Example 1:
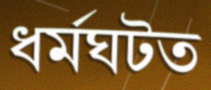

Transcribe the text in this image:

ধৰ্মঘটত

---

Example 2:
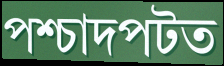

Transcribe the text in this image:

পশ্চাদপটত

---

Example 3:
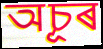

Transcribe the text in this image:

অচূৰ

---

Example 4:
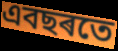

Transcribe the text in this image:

এবছৰতে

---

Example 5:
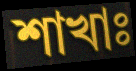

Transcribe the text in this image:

শাখাঃ